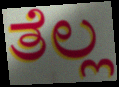
ತೆಲ್ಲ